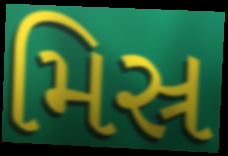
મિસ્ર